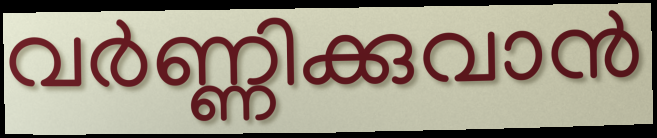
വർണ്ണിക്കുവാൻ